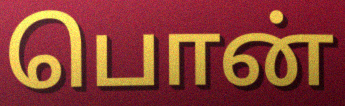
பொன்